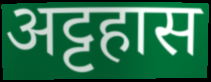
अट्टहास